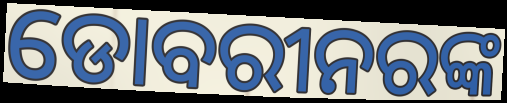
ଡୋବରୀନରଙ୍କ